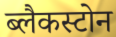
ब्लैकस्टोन